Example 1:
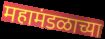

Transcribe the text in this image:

महामंडळाच्या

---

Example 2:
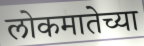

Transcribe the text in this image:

लोकमातेच्या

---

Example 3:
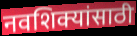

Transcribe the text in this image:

नवशिक्यांसाठी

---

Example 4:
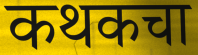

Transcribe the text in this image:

कथकचा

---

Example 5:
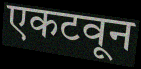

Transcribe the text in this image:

एकटवून